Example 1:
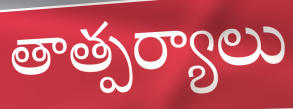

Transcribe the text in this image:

తాత్పర్యాలు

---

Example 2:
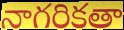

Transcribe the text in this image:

నాగరికతా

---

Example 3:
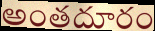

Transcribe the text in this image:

అంతదూరం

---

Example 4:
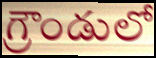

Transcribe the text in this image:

గ్రౌండులో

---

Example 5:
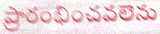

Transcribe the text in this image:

ప్రారంభించవలెను